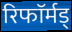
रिफॉर्मड्